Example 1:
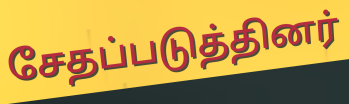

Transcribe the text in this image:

சேதப்படுத்தினர்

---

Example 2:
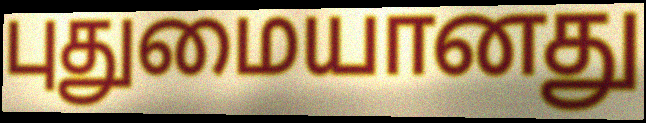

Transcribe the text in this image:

புதுமையானது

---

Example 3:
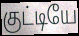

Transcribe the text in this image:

குட்டியே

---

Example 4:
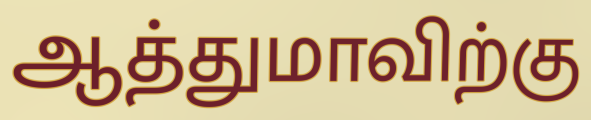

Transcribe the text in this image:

ஆத்துமாவிற்கு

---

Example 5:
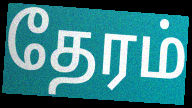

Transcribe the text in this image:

தேரம்